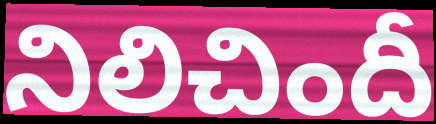
నిలిచిందీ